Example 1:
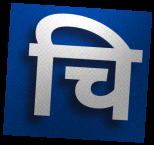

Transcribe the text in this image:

चि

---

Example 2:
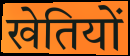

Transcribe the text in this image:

खेतियों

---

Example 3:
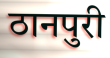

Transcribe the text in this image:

ठानपुरी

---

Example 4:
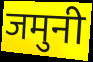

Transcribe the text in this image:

जमुनी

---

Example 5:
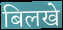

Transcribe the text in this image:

बिलखे